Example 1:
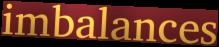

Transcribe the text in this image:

imbalances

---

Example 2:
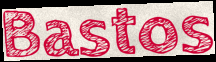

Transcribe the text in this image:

Bastos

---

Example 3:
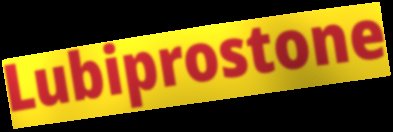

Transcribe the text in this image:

Lubiprostone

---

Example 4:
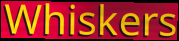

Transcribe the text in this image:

Whiskers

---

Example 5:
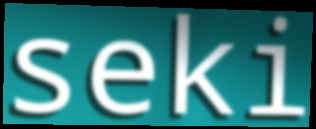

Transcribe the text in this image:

seki